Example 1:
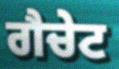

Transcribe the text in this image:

ਗੈਚੇਟ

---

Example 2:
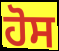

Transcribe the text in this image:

ਹੋਸ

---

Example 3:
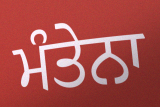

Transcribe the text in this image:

ਮੰਤੇਨਾ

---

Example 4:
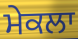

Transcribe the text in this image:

ਮੇਕਲਾ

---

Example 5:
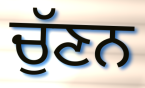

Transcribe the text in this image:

ਚੁੱਣਨ